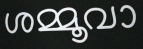
ശമ്മൂവാ